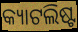
କ୍ୟାଟଲିଷ୍ଟ